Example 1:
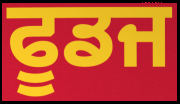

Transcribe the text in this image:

ਫੂਡਜ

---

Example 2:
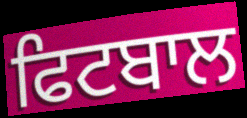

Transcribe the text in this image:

ਫਿਟਬਾਲ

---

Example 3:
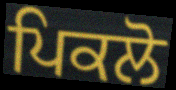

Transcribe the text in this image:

ਪਿਕਲੋ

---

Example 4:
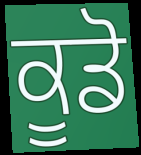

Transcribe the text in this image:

ਕੂਡੋ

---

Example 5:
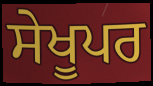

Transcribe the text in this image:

ਸੇਖੂਪਰ